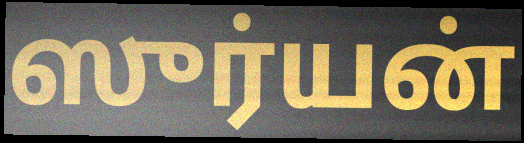
ஸுர்யன்